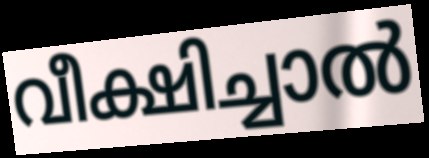
വീക്ഷിച്ചാൽ